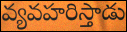
వ్యవహరిస్తాడు